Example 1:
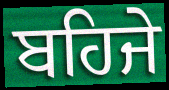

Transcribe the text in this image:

ਬਹਿਜੇ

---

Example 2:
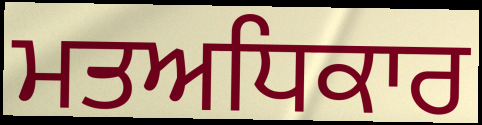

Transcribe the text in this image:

ਮਤਅਧਿਕਾਰ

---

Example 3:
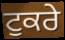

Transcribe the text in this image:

ਟੁਕਰੇ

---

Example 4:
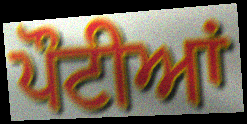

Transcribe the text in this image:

ਪੌਟੀਆਂ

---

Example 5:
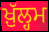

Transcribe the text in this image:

ਖ਼ੁੱਲ੍ਹਮ